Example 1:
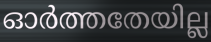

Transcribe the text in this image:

ഓർത്തതേയില്ല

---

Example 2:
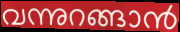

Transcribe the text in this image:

വന്നുറങ്ങാൻ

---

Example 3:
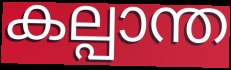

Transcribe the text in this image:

കല്പാന്ത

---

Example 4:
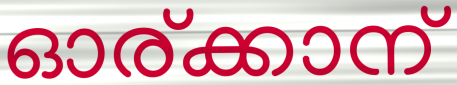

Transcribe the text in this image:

ഓര്ക്കാന്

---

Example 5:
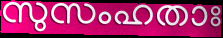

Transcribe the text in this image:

സുസംഹതാഃ